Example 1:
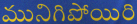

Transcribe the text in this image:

మునిగిపోయిరి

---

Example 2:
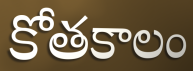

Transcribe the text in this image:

కోతకాలం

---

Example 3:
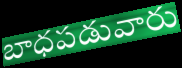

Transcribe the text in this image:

బాధపడువారు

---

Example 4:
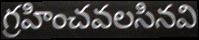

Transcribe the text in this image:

గ్రహించవలసినవి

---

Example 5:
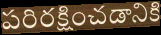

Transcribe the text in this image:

పరిరక్షించడానికి